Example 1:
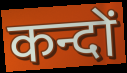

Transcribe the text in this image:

कन्दों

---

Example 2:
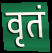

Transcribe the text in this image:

वृतं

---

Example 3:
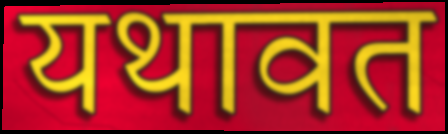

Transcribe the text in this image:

यथावत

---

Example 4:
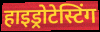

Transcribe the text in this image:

हाइड्रोटेस्टिंग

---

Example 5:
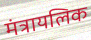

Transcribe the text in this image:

मंत्रायलिक